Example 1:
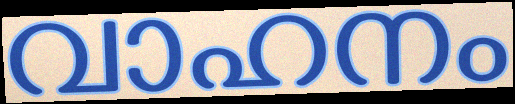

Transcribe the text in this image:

വാഹനം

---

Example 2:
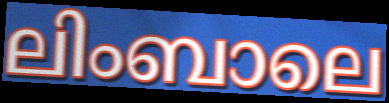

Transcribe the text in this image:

ലിംബാലെ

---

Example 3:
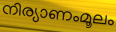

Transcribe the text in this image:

നിര്യാണംമൂലം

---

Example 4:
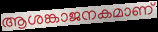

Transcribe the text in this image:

ആശങ്കാജനകമാണ്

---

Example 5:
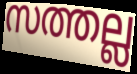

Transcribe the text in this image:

സത്തല്ല